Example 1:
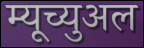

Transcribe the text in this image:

म्यूच्युअल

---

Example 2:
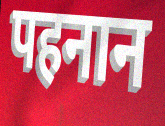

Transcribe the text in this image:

पहनान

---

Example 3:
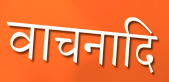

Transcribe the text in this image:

वाचनादि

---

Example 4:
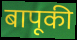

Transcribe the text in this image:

बापूकी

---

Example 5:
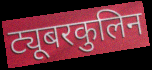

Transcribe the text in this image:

ट्यूबरकुलिन